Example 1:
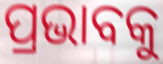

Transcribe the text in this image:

ପ୍ରଭାବକୁ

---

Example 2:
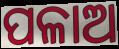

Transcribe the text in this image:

ପଳାଅ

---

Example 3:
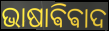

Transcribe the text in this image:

ଭାଷାଵିଵାଦ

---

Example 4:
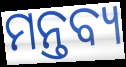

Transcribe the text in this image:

ମନ୍ତବ୍ୟ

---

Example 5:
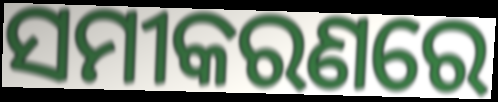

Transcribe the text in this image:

ସମୀକରଣରେ